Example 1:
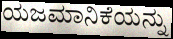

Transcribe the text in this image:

ಯಜಮಾನಿಕೆಯನ್ನು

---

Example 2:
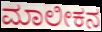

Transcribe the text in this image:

ಮಾಲೀಕನ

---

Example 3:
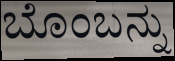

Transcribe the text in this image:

ಬೊಂಬನ್ನು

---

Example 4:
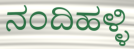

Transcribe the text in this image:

ನಂದಿಹಳ್ಳಿ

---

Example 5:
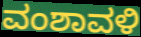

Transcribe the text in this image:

ವಂಶಾವಳಿ